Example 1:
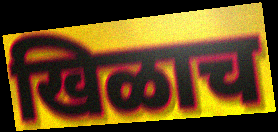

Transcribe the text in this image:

खिळाच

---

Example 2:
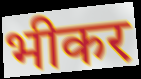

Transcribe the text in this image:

भीकर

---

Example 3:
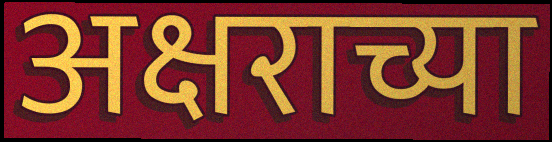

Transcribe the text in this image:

अक्षराच्या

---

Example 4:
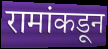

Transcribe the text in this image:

रामांकडून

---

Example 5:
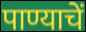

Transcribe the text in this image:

पाण्याचें